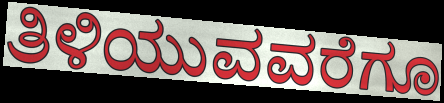
ತಿಳಿಯುವವರೆಗೂ